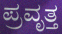
ಪ್ರವೃತ್ತ